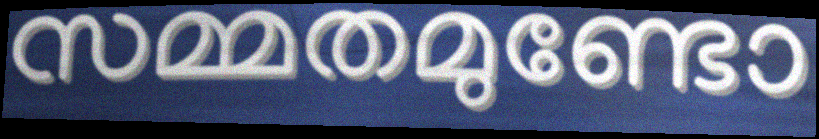
സമ്മതമുണ്ടോ